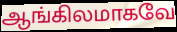
ஆங்கிலமாகவே